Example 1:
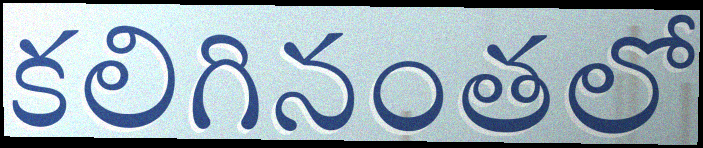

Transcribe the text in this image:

కలిగినంతలో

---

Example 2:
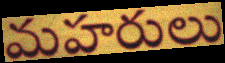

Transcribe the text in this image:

మహరులు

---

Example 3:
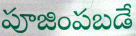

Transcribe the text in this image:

పూజింపబడే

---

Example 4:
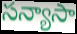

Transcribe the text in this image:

సన్యాసా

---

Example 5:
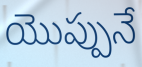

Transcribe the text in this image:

యొప్పునే